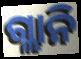
ଗ୍ଲାନି